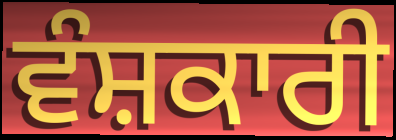
ਵੰਸ਼ਕਾਰੀ